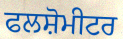
ਫਲਸ਼ੋਮੀਟਰ